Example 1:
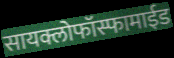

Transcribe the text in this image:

सायक्लोफॉस्फामाईड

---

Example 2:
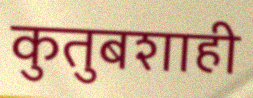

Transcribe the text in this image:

कुतुबशाही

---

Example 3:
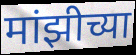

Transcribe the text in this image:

मांझीच्या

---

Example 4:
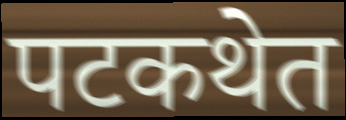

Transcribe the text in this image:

पटकथेत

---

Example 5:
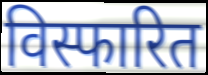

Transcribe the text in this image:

विस्फारित